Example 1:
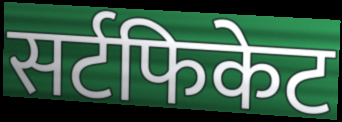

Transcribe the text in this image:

सर्टफिकेट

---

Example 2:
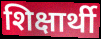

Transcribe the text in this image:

शिक्षार्थी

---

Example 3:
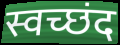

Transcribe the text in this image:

स्वच्छंद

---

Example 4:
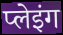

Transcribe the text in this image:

प्लेइंग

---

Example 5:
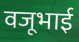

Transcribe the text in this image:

वजूभाई